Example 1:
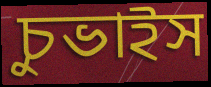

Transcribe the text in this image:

চুভাইস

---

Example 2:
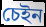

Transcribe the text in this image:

চেইন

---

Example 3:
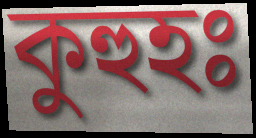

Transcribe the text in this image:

কুহুহঃ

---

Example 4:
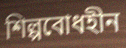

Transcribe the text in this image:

শিল্পবোধহীন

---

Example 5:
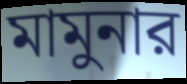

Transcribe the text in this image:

মামুনার